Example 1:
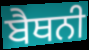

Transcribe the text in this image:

ਬੈਥਨੀ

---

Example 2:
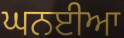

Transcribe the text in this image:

ਘਨਈਆ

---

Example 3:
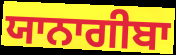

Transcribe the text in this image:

ਯਾਨਾਗੀਬਾ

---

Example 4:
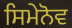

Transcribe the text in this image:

ਸਿਮੇਨੋਵ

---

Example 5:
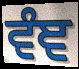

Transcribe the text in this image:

ਵੰਞ